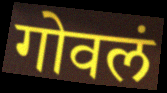
गोवलं